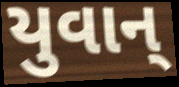
યુવાન્